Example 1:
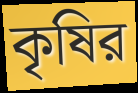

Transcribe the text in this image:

কৃষির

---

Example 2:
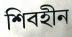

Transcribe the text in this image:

শিবহীন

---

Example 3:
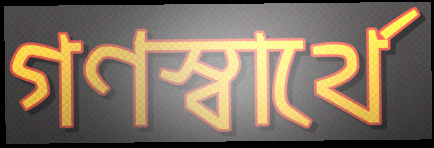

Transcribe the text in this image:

গণস্বার্থে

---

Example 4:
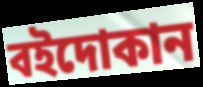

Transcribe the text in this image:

বইদোকান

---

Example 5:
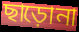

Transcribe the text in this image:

ছাড়োনা